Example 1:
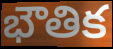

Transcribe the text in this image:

భౌతిక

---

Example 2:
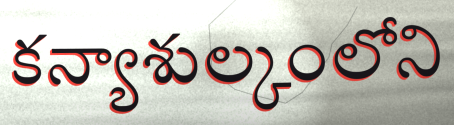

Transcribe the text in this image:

కన్యాశుల్కంలోని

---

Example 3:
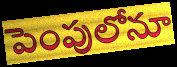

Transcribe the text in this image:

పెంపులోనూ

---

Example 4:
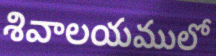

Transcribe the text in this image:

శివాలయములో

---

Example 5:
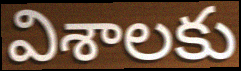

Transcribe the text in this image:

విశాలకు